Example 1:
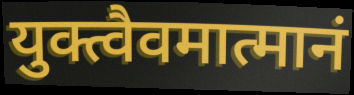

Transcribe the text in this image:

युक्त्वैवमात्मानं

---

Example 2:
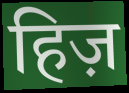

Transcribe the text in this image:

हिज़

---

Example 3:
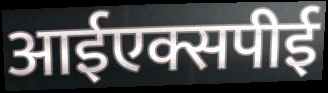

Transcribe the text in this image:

आईएक्सपीई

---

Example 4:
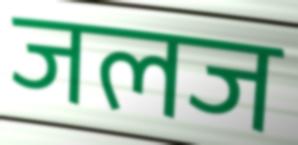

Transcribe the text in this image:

जलज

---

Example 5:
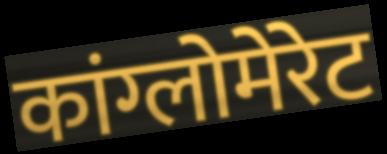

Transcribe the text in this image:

कांग्लोमेरेट